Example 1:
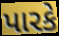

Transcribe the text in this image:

પારકે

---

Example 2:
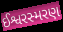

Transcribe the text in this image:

ઈશ્વરસ્મરણ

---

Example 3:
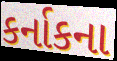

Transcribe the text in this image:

કર્નાકના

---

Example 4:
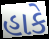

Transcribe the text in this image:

હાકે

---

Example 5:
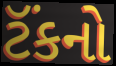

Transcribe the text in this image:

ટૅંકનો